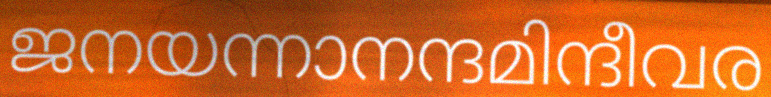
ജനയന്നാനന്ദമിന്ദീവര